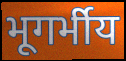
भूगर्भीय